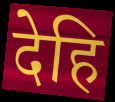
देहि